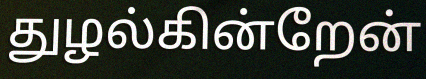
துழல்கின்றேன்